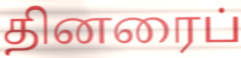
தினரைப்